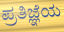
ಪ್ರತಿಜ್ಞೆಯ